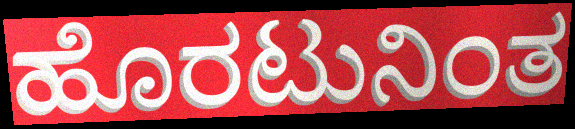
ಹೊರಟುನಿಂತ